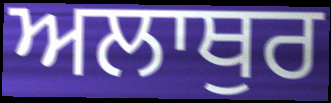
ਅਲਾਥੁਰ